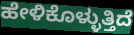
ಹೇಳಿಕೊಳ್ಳುತ್ತಿದೆ